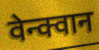
वेन्क्वान